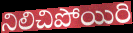
నిలిచిపోయిరి